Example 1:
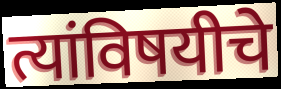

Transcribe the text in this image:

त्यांविषयीचे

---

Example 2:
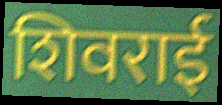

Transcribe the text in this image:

शिवराई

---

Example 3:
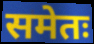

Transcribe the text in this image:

समेतः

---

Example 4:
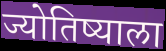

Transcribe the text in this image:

ज्योतिष्याला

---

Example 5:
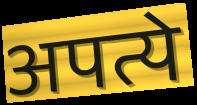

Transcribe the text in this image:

अपत्ये